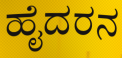
ಹೈದರನ